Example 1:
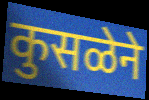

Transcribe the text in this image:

कुसळेने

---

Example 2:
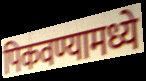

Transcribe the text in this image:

पिकवण्यामध्ये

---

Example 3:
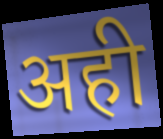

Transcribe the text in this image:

अही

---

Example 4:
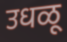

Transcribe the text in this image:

उधळू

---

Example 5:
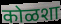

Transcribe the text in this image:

कोळशा